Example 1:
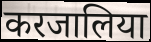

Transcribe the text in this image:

करजालिया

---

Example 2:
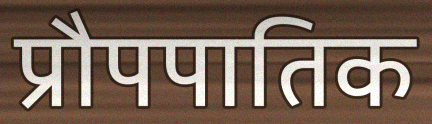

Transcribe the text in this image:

प्रौपपातिक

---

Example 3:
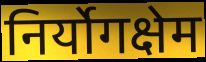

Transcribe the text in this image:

निर्योगक्षेम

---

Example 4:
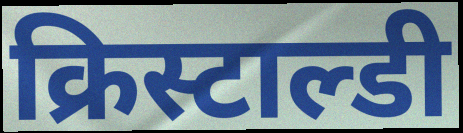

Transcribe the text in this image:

क्रिस्टाल्डी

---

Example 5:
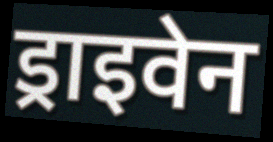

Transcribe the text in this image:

ड्राइवेन